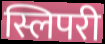
स्लिपरी